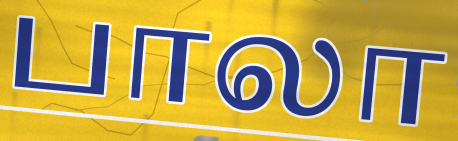
பாலா